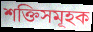
শক্তিসমূহক